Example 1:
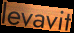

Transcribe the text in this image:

levavit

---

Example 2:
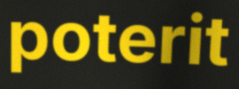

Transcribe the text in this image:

poterit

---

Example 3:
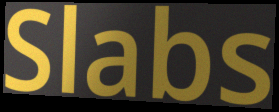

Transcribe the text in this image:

Slabs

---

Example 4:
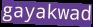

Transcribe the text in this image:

gayakwad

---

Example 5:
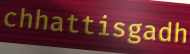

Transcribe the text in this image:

chhattisgadh